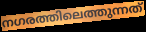
നഗരത്തിലെത്തുന്നത്